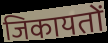
जिकायतों